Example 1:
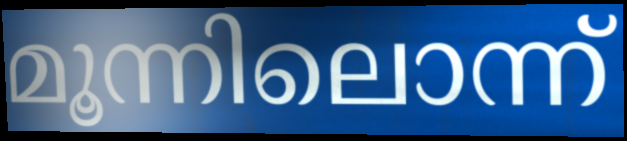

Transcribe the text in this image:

മൂന്നിലൊന്ന്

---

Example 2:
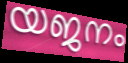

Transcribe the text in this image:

യജനം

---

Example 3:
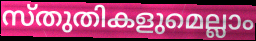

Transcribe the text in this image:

സ്തുതികളുമെല്ലാം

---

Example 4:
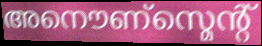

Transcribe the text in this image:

അനൌണ്സ്മെന്റ്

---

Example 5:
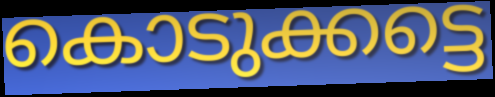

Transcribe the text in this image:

കൊടുക്കട്ടെ